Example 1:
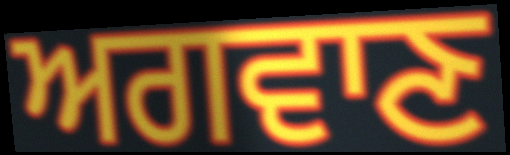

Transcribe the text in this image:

ਅਗਵਾਣ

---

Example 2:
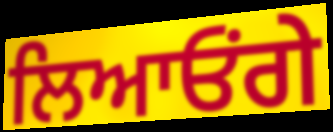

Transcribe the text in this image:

ਲਿਆਓਂਗੇ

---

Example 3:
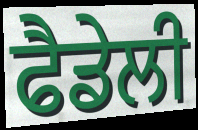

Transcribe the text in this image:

ਫੈਡੇਲੀ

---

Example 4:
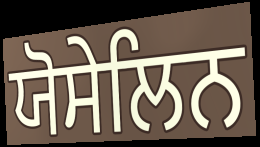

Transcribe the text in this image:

ਯੋਸੇਲਿਨ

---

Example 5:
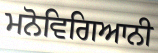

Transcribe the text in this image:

ਮਨੋਵਿਗਿਆਨੀ